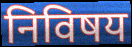
निविषय